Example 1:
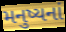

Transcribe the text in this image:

મનુષ્યનાં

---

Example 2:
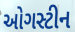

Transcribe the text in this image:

ઓગસ્ટીન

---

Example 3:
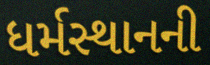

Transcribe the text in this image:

ધર્મસ્થાનની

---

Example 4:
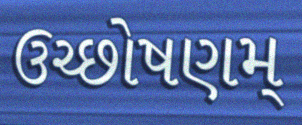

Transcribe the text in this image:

ઉચ્છોષણમ્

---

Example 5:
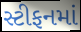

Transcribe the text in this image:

સ્ટીફનમાં